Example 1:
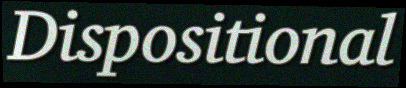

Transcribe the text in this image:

Dispositional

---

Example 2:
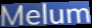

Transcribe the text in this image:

Melum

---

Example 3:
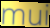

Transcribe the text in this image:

mui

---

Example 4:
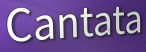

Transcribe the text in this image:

Cantata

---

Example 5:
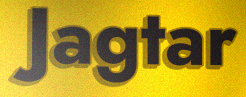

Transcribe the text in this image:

Jagtar